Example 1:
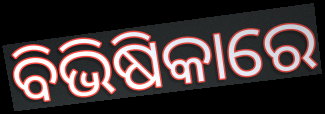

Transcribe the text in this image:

ବିଭିଷିକାରେ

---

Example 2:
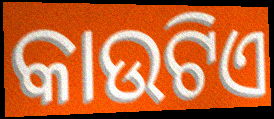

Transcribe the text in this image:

କାଉଟିଏ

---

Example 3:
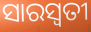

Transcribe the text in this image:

ସାରସ୍ୱତୀ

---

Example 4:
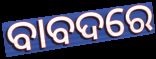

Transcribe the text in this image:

ବାବଦରେ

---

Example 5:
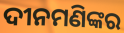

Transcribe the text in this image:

ଦୀନମଣିଙ୍କର